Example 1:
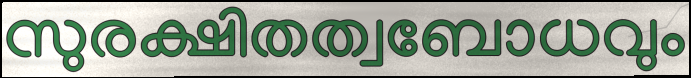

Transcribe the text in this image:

സുരക്ഷിതത്വബോധവും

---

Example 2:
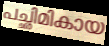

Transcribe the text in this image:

പച്ഛിമികായ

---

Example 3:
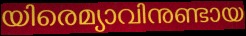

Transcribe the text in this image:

യിരെമ്യാവിനുണ്ടായ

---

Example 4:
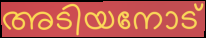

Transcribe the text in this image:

അടിയനോട്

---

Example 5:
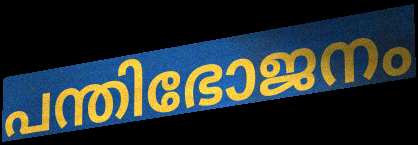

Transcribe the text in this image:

പന്തിഭോജനം